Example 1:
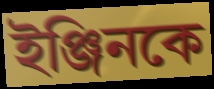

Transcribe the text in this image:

ইঞ্জিনকে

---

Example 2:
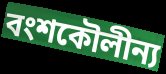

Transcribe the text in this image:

বংশকৌলীন্য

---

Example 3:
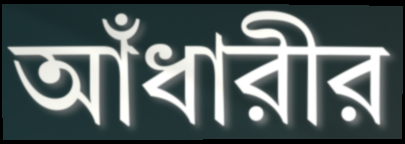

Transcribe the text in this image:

আঁধারীর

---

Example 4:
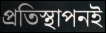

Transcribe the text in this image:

প্রতিস্থাপনই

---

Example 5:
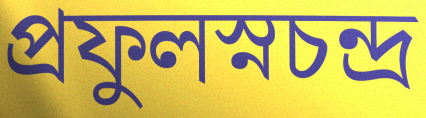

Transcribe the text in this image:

প্রফুলস্নচন্দ্র